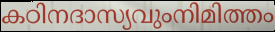
കഠിനദാസ്യവുംനിമിത്തം